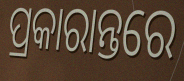
ପ୍ରକାରାନ୍ତରେ